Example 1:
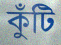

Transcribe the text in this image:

কুঁটি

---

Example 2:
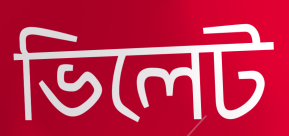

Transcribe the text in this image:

ভিলেট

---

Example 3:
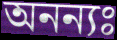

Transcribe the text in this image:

অনন্যঃ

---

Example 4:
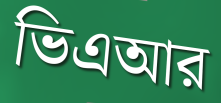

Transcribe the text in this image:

ভিএআর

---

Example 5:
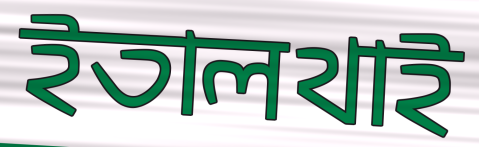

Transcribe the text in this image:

ইতালথাই